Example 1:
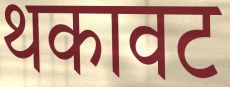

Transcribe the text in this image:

थकावट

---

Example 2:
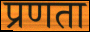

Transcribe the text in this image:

प्रणता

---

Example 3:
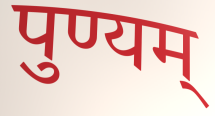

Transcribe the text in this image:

पुण्यम्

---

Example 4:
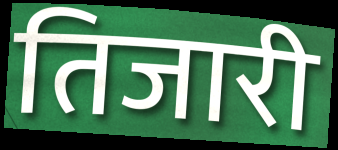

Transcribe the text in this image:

तिजारी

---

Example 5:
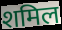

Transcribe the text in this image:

शमिल